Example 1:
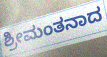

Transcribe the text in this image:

ಶ್ರೀಮಂತನಾದ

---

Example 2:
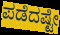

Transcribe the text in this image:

ಪಡೆದಷ್ಟೇ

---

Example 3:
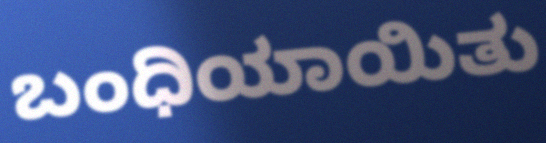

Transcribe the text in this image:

ಬಂಧಿಯಾಯಿತು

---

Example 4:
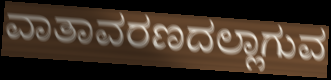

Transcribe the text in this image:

ವಾತಾವರಣದಲ್ಲಾಗುವ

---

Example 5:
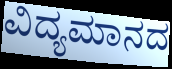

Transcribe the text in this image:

ವಿದ್ಯಮಾನದ